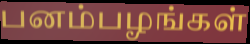
பனம்பழங்கள்